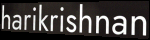
harikrishnan